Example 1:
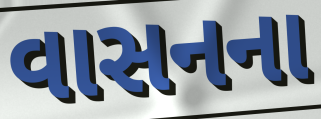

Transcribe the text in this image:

વાસનના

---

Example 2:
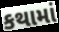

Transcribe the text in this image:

કથામાં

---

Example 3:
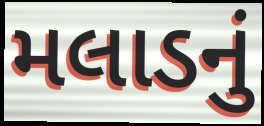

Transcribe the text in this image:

મલાડનું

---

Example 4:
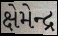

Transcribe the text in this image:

ક્ષેમેન્દ્ર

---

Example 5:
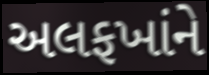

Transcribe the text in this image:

અલફખાંને